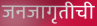
जनजागृतीची